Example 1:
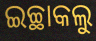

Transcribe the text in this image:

ଇଚ୍ଛାକଲୁ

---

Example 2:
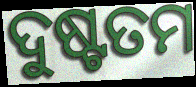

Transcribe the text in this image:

ଦୁଷ୍ଟତମ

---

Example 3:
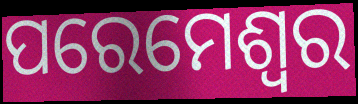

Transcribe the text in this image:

ପରେମେଶ୍ଵର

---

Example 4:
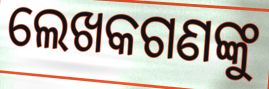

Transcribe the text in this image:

ଲେଖକଗଣଙ୍କୁ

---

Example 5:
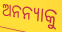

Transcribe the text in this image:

ଅନନ୍ୟାକୁ